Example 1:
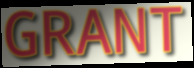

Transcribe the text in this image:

GRANT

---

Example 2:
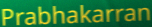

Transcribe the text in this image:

Prabhakarran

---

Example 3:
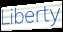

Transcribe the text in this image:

Liberty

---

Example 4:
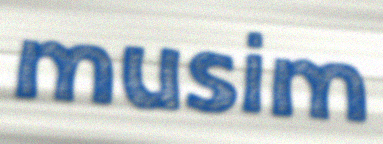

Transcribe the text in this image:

musim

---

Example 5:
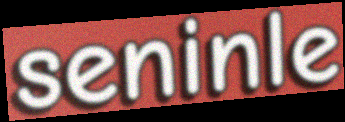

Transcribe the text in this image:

seninle